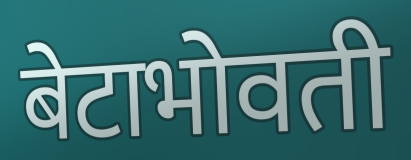
बेटाभोवती